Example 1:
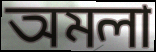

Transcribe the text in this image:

অমলা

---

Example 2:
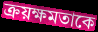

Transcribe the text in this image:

ক্রয়ক্ষমতাকে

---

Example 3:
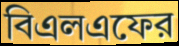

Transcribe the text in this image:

বিএলএফের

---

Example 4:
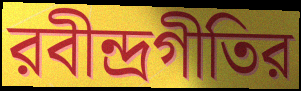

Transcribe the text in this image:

রবীন্দ্রগীতির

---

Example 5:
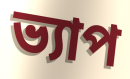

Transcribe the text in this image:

ভ্যাপ